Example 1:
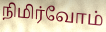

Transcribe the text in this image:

நிமிர்வோம்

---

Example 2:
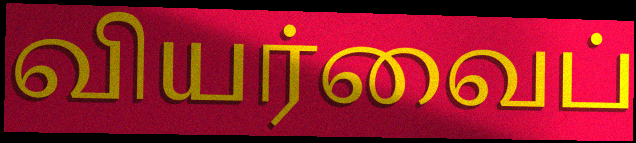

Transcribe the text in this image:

வியர்வைப்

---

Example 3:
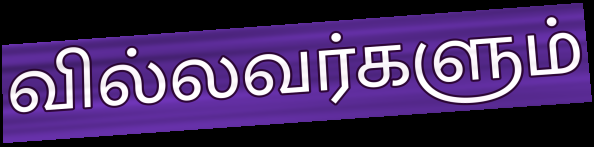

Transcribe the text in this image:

வில்லவர்களும்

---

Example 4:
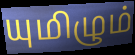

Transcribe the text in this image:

யுமிழும்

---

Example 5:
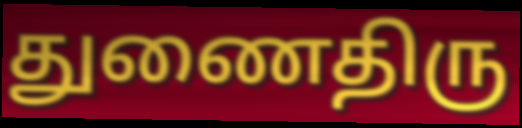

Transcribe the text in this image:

துணைதிரு